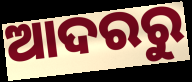
ଆଦରରୁ